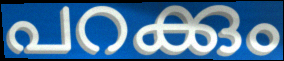
പറക്കും